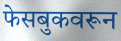
फेसबुकवरून